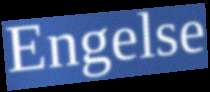
Engelse